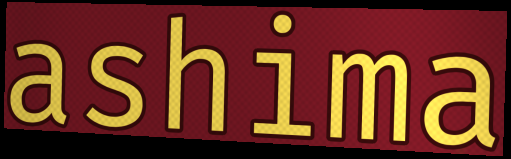
ashima